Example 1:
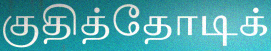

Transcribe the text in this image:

குதித்தோடிக்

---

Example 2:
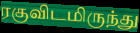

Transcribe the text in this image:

ரகுவிடமிருந்து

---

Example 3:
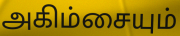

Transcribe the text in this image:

அகிம்சையும்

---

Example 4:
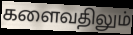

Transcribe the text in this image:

களைவதிலும்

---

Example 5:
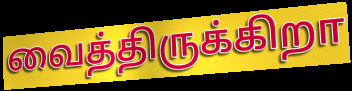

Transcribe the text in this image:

வைத்திருக்கிறா